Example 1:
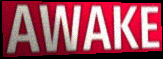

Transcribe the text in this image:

AWAKE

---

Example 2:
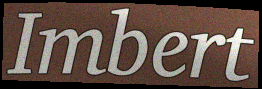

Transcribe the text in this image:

Imbert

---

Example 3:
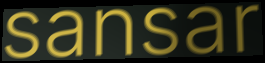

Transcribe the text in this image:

sansar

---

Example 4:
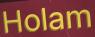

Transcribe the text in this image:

Holam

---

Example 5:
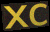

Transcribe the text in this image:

xc